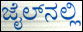
ಜೈಲ್‌ನಲ್ಲಿ